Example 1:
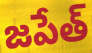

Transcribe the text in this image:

జపేత్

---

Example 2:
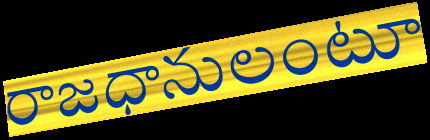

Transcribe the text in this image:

రాజధానులంటూ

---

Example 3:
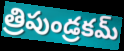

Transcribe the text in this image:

త్రిపుండ్రకమ్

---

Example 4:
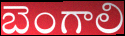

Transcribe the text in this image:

బెంగాలి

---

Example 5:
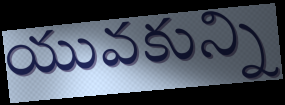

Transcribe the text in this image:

యువకున్ని